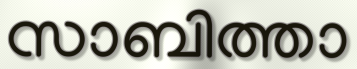
സാബിത്താ